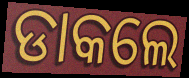
ଡାକଲେ